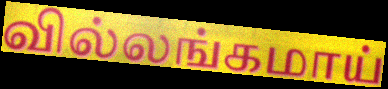
வில்லங்கமாய்